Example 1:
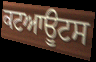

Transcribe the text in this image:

ਕਟਆਊਟਸ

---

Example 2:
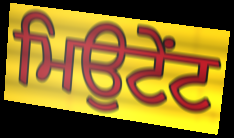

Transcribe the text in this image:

ਮਿਉਟੇਂਟ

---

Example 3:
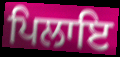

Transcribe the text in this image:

ਪਿਲਾਇ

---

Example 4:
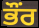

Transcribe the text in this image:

ਭੌਂਰ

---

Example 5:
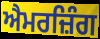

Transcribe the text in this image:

ਐਮਰਜ਼ਿੰਗ